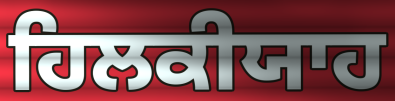
ਹਿਲਕੀਯਾਹ